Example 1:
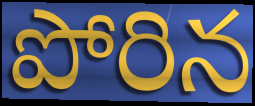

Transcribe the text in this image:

పోరిన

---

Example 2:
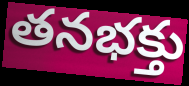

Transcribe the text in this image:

తనభక్తు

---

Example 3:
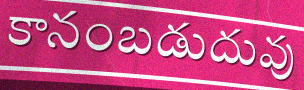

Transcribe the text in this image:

కానంబడుదువు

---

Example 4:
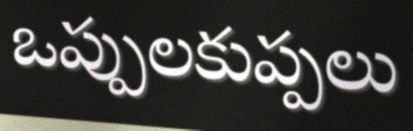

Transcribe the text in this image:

ఒప్పులకుప్పలు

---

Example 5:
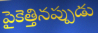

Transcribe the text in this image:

పైకెత్తినప్పుడు